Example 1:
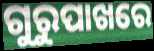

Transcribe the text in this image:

ଗୁରୁପାଖରେ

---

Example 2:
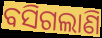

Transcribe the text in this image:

ବସିଗଲାଣି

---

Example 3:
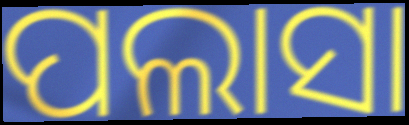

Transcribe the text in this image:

ପଲାସା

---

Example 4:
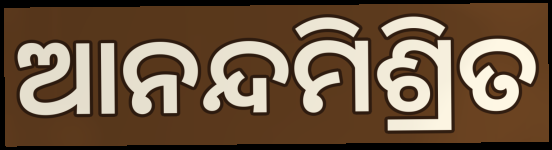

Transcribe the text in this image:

ଆନନ୍ଦମିଶ୍ରିତ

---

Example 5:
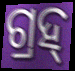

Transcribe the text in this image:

ଗ୍ରହ୍